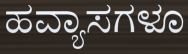
ಹವ್ಯಾಸಗಳೂ